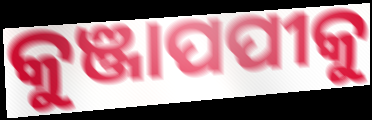
କୁଞ୍ଜାପପୀକୁ